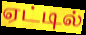
ஏட்டில்